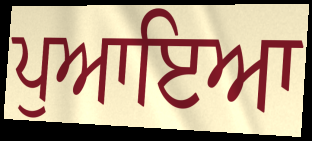
ਪੁਆਇਆ